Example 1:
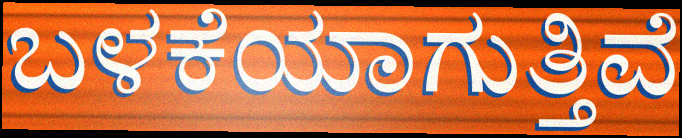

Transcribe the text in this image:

ಬಳಕೆಯಾಗುತ್ತಿವೆ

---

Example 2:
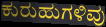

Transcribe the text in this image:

ಕುರುಹುಗಳಿವು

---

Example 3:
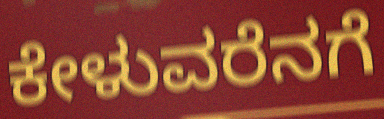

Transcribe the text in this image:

ಕೇಳುವರೆನಗೆ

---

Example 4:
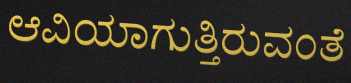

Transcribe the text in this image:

ಆವಿಯಾಗುತ್ತಿರುವಂತೆ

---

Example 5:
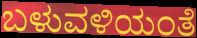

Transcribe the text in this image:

ಬಳುವಳಿಯಂತೆ